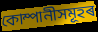
কোম্পানীসমূহৰ